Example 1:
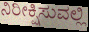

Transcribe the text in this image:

ನಿರೀಕ್ಷಿಸುವಲ್ಲಿ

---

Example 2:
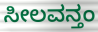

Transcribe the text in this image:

ಸೀಲವನ್ತಂ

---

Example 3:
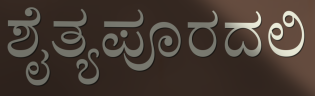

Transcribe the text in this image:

ಶೈತ್ಯಪೂರದಲಿ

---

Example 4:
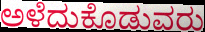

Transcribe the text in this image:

ಅಳೆದುಕೊಡುವರು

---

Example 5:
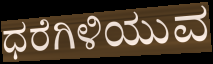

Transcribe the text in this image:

ಧರೆಗಿಳಿಯುವ